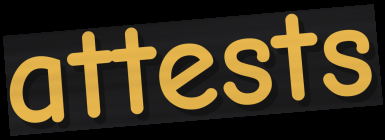
attests